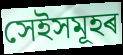
সেইসমূহৰ